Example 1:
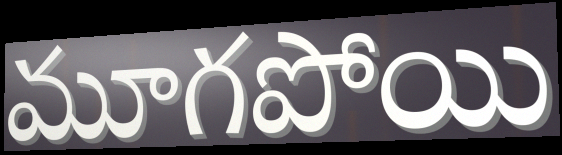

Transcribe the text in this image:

మూగపోయి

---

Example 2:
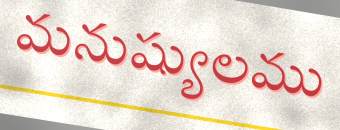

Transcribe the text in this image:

మనుష్యులము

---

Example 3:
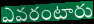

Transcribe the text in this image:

ఎవరంటారు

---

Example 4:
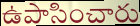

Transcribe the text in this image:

ఉపాసించారు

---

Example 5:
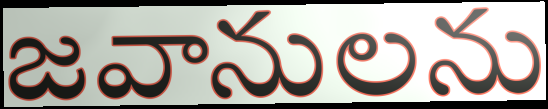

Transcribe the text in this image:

జవానులను